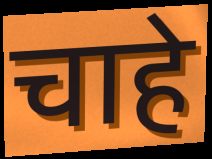
चाहे